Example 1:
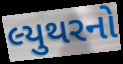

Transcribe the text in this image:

લ્યુથરનો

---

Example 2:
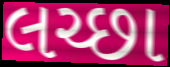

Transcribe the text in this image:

લચ્છા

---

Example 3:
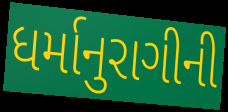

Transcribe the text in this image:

ધર્માનુરાગીની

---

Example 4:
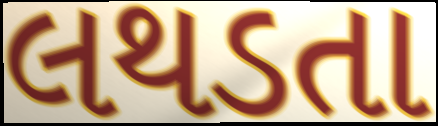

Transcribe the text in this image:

લથડતા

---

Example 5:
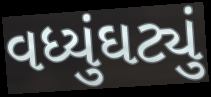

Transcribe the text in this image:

વધ્યુંઘટ્યું